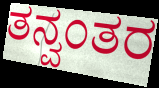
ತನ್ವಂತರ